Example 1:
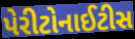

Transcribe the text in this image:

પેરીટોનાઈટીસ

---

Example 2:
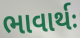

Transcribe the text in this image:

ભાવાર્થઃ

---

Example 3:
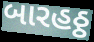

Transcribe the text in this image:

બારહઠ્ઠ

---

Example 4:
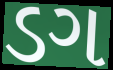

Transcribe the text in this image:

ડગ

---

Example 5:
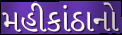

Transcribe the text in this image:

મહીકાંઠાનો